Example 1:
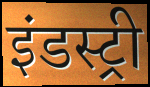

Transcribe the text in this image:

इंडस्ट्री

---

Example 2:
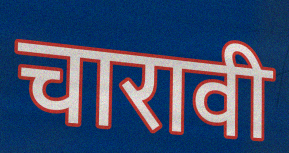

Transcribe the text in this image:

चारावी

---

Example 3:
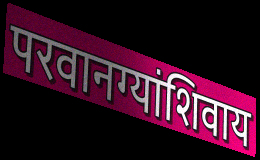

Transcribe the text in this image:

परवानग्यांशिवाय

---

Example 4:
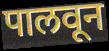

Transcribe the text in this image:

पालवून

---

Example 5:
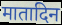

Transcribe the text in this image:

मातादिन